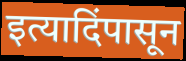
इत्यादिंपासून